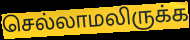
செல்லாமலிருக்க